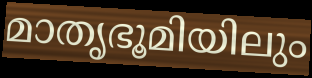
മാതൃഭൂമിയിലും